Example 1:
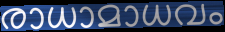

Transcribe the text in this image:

രാധാമാധവം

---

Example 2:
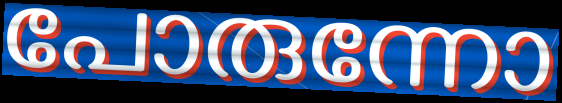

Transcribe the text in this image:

പോരുന്നോ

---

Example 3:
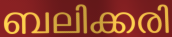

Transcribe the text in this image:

ബലിക്കരി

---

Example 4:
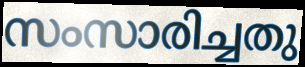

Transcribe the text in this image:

സംസാരിച്ചതു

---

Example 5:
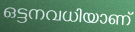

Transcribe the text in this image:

ഒട്ടനവധിയാണ്